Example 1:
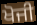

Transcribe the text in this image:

ਖੋਜੀ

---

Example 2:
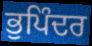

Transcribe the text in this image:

ਭੁਪਿੰਦਰ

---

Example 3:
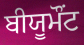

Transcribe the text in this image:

ਬੀਯੂਮੌਂਟ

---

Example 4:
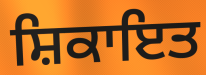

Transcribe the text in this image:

ਸ਼ਿਕਾਇਤ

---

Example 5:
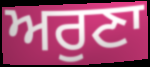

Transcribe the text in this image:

ਅਰੁਣਾ